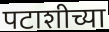
पटाशीच्या